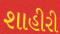
શાહીરી